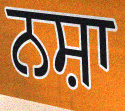
ਨਸ਼ਾ